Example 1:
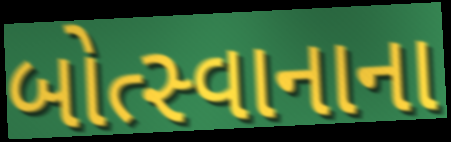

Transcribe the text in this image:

બોત્સ્વાનાના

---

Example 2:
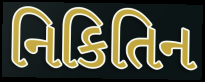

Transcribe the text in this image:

નિકિતિન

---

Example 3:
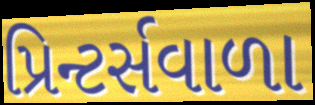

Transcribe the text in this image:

પ્રિન્ટર્સવાળા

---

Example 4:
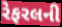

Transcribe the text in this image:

રેફરલની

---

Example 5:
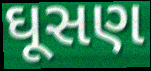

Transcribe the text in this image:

ઘૂસણ